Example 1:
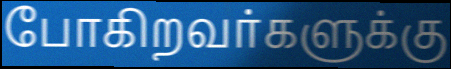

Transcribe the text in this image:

போகிறவர்களுக்கு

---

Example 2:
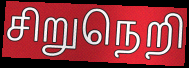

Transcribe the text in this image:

சிறுநெறி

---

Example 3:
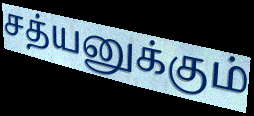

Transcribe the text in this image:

சத்யனுக்கும்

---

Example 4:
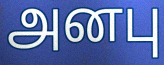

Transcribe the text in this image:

அனபு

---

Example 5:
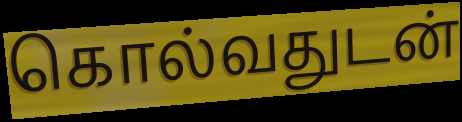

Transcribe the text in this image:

கொல்வதுடன்